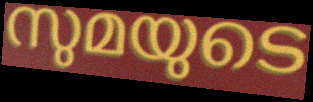
സുമയുടെ